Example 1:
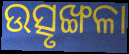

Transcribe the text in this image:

ଉତ୍ସୃଙ୍ଖଳା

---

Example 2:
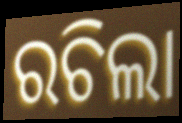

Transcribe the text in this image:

ରଚିଲା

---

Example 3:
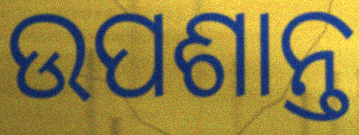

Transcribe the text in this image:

ଉପଶାନ୍ତ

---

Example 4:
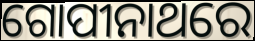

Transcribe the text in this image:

ଗୋପୀନାଥରେ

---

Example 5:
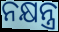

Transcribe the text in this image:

ନକ୍ଷନ୍ତ୍ର